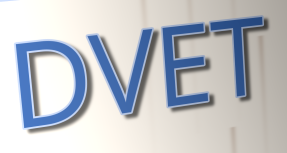
DVET